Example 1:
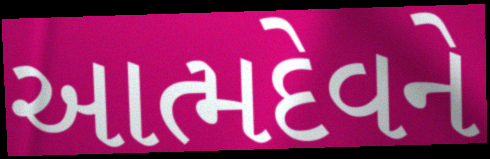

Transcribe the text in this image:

આત્મદેવને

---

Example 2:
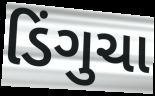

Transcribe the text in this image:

ડિંગુચા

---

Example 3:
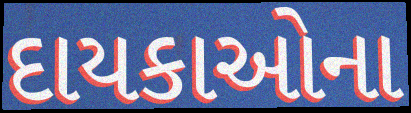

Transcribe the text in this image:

દાયકાઓના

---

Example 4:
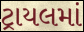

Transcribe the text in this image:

ટ્રાયલમાં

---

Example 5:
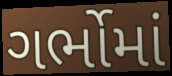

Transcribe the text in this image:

ગર્ભોમાં